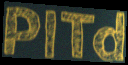
PITd